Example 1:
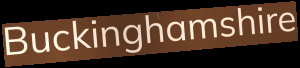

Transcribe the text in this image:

Buckinghamshire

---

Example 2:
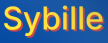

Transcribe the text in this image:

Sybille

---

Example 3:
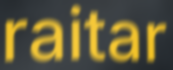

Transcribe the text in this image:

raitar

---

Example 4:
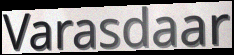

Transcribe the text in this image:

Varasdaar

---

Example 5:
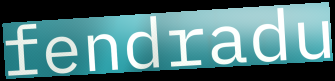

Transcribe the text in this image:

fendradu